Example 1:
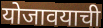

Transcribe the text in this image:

योजावयाची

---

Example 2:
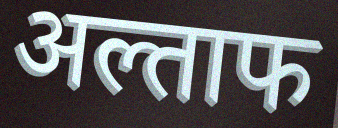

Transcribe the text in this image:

अल्ताफ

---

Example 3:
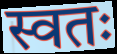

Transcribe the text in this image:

स्वतः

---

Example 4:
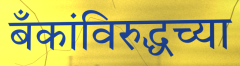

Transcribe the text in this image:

बँकांविरुद्धच्या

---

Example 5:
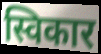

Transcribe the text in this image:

स्विकार